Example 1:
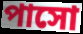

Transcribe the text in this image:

পাসো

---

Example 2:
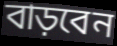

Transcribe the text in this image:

বাড়বেন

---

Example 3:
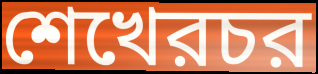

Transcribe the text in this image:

শেখেরচর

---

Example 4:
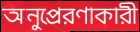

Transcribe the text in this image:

অনুপ্রেরণাকারী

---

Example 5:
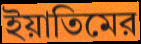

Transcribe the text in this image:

ইয়াতিমের